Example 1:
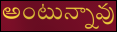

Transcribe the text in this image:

అంటున్నావు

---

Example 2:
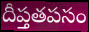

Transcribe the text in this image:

దీప్తతపసం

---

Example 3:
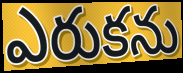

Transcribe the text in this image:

ఎరుకను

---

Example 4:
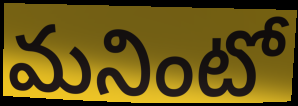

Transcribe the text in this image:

మనింటో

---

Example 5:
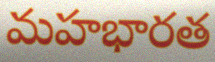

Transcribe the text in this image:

మహభారత